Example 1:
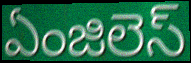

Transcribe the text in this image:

ఏంజిలెస్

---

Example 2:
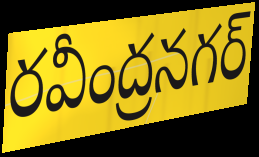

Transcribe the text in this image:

రవీంద్రనగర్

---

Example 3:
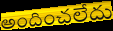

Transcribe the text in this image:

అందించలేదు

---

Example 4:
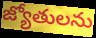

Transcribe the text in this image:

జ్యోతులను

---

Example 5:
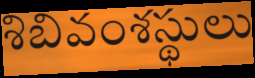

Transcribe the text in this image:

శిబివంశస్థులు